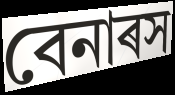
বেনাৰস